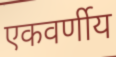
एकवर्णीय